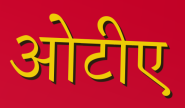
ओटीए